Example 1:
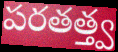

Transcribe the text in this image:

పరతత్త్వ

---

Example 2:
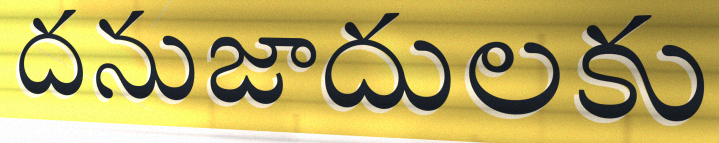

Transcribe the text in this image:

దనుజాదులకు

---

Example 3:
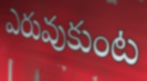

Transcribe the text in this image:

ఎరువుకుంట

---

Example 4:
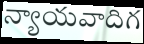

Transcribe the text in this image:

న్యాయవాదిగ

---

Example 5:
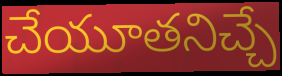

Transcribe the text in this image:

చేయూతనిచ్చే